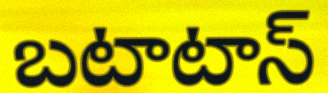
బటాటాస్